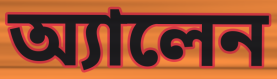
অ্যালেন